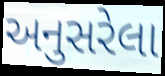
અનુસરેલા